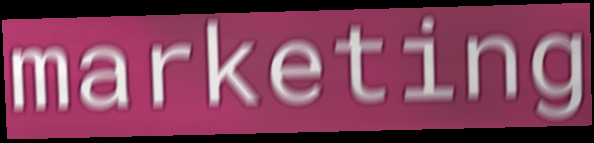
marketing